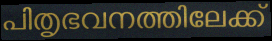
പിതൃഭവനത്തിലേക്ക്